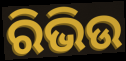
ରିଭିଉ